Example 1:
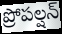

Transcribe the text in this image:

ప్రోపల్షన్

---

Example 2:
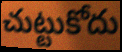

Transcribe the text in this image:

చుట్టుకోదు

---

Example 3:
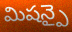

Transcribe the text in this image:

మిషన్పై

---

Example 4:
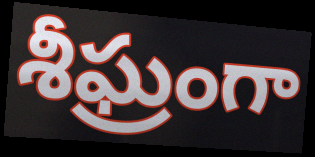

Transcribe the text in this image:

శీఘ్రంగా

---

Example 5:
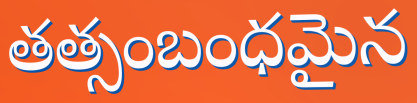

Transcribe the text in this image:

తత్సంబంధమైన